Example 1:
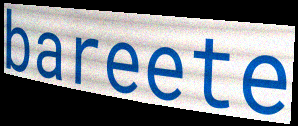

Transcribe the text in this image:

bareete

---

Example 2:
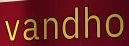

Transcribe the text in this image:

vandho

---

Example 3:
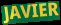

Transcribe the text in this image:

JAVIER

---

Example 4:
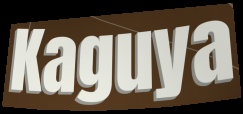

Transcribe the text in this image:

Kaguya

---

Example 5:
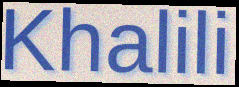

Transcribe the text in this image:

Khalili